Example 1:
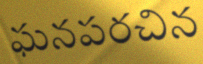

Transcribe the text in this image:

ఘనపరచిన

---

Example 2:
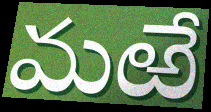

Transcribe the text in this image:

మఱే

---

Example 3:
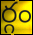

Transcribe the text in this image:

ర్గం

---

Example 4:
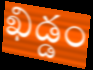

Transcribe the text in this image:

ఖిడ్డం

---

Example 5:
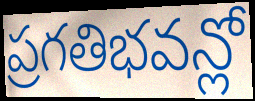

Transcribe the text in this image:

ప్రగతిభవన్లో